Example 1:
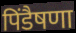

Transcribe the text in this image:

पिंडैषणा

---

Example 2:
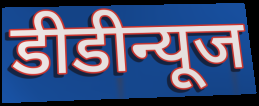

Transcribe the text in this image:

डीडीन्यूज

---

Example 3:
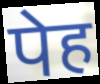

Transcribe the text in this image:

पेह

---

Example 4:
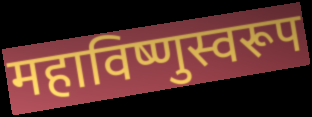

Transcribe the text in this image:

महाविष्णुस्वरूप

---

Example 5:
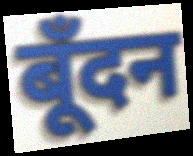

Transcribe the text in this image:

बूँदन